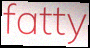
fatty